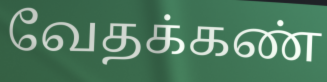
வேதக்கண்